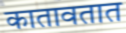
कातावतात